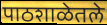
पाठशाळेतले